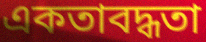
একতাবদ্ধতা